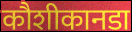
कौशीकानडा